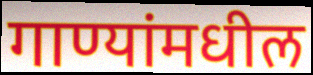
गाण्यांमधील